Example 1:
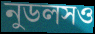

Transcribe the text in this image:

নুডলসও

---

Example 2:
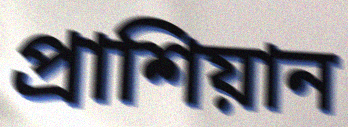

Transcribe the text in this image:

প্রাশিয়ান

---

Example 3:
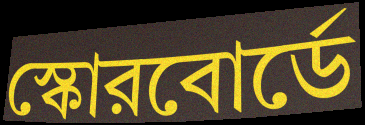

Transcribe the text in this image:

স্কোরবোর্ডে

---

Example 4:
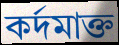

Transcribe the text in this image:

কর্দমাক্ত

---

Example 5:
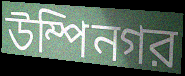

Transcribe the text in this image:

উম্পিনগর